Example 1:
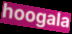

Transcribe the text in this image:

hoogala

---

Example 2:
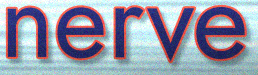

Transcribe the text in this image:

nerve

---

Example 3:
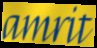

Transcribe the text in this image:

amrit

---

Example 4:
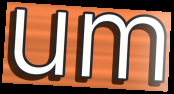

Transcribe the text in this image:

um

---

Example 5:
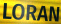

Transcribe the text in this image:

LORAN